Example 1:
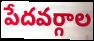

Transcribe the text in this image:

పేదవర్గాల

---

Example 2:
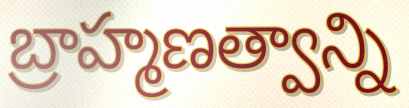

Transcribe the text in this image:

బ్రాహ్మణత్వాన్ని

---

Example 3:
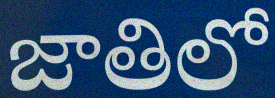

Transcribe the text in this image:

జాతిలో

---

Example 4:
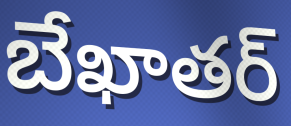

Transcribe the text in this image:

బేఖాతర్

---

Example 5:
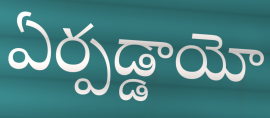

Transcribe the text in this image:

ఏర్పడ్డాయో